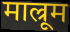
माल्रूम